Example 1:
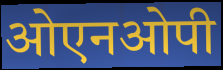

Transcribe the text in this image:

ओएनओपी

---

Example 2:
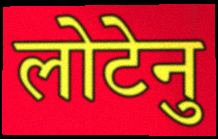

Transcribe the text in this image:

लोटेनु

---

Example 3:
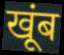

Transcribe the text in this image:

खूंब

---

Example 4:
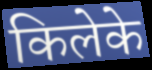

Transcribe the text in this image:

किलेके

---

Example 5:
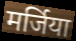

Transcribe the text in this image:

मर्जिया